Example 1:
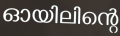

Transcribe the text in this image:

ഓയിലിന്റെ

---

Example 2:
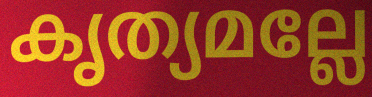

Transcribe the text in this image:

കൃത്യമല്ലേ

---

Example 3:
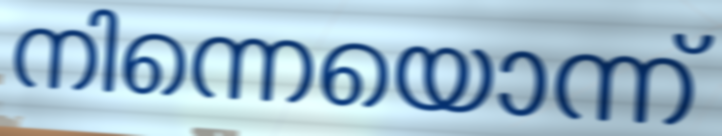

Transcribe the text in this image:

നിന്നെയൊന്ന്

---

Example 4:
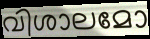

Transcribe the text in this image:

വിശാലമോ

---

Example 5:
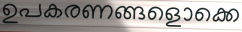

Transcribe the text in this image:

ഉപകരണങ്ങളൊക്കെ